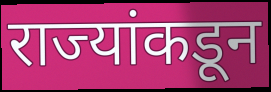
राज्यांकडून